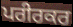
ਪਰੀਰਕਰ